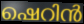
ഷെറിൻ